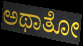
ಅಥಾತೋ